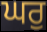
ਘਰੁ